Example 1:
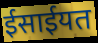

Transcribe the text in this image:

ईसाईयत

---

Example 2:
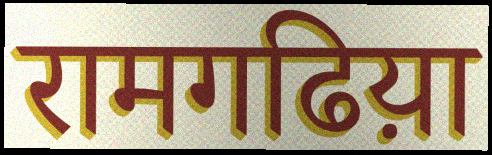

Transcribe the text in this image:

रामगढिय़ा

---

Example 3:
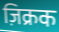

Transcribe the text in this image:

ज़िक्रक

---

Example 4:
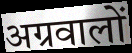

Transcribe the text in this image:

अग्रवालों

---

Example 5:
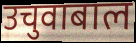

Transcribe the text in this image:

उचुवाबाल